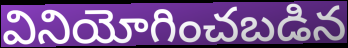
వినియోగించబడిన